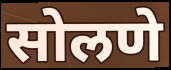
सोलणे